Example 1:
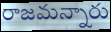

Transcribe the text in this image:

రాజమన్నారు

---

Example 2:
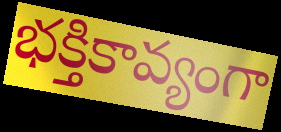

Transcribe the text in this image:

భక్తికావ్యంగా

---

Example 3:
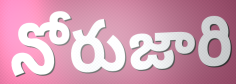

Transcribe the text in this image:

నోరుజారి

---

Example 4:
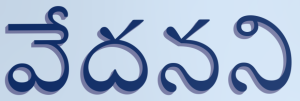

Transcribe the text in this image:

వేదనని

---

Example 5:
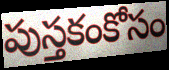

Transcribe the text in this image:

పుస్తకంకోసం